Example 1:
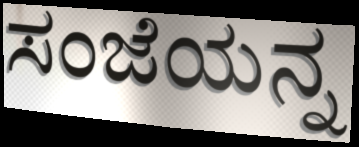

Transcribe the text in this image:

ಸಂಜೆಯನ್ನ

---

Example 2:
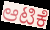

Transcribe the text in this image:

ಆಟಿಕೆ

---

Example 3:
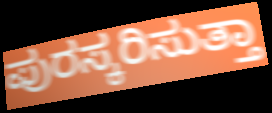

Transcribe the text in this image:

ಪುರಸ್ಕರಿಸುತ್ತಾ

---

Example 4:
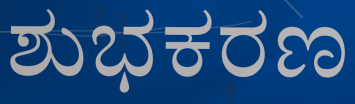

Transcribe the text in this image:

ಶುಭಕರಣ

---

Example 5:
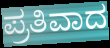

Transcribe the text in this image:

ಪ್ರತಿವಾದ